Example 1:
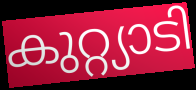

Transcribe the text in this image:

കുറ്റ്യാടി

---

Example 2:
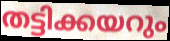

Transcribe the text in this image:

തട്ടിക്കയറും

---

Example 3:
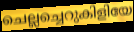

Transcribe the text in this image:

ചെല്ലച്ചെറുകിളിയേ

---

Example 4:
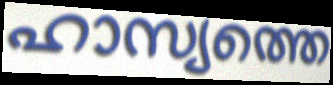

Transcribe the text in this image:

ഹാസ്യത്തെ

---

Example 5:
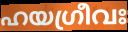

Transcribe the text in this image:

ഹയഗ്രീവഃ